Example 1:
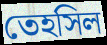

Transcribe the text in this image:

তেহসিল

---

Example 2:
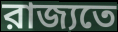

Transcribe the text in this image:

রাজ্যতে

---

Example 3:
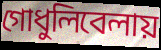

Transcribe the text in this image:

গোধুলিবেলায়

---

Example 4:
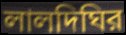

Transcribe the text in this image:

লালদিঘির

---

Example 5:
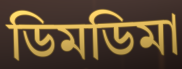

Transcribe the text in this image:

ডিমডিমা